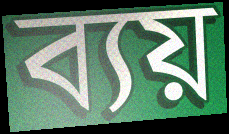
ব্যয়